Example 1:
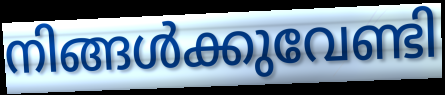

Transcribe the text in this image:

നിങ്ങൾക്കുവേണ്ടി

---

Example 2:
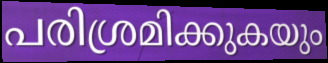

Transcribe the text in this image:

പരിശ്രമിക്കുകയും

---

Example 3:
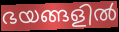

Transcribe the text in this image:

ഭയങ്ങളിൽ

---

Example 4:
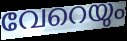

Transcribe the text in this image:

വേറെയും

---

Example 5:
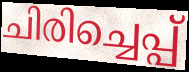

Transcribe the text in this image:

ചിരിച്ചെപ്പ്